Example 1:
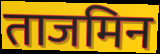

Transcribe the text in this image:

ताजमिन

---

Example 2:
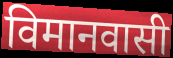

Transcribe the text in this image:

विमानवासी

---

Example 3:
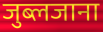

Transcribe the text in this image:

जुब्लजाना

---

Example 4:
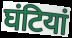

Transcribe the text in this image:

घंटियां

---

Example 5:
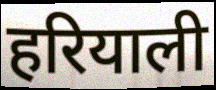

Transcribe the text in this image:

हरियाली